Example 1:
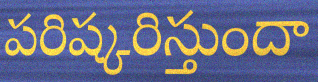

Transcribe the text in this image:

పరిష్కరిస్తుందా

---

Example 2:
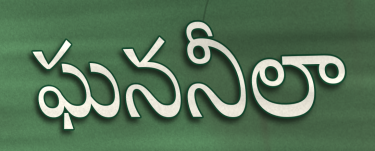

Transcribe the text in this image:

ఘననీలా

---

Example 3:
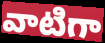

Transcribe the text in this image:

వాటిగా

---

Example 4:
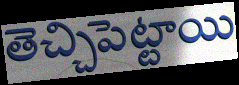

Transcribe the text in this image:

తెచ్చిపెట్టాయి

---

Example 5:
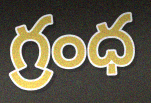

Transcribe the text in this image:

గ్రంధ